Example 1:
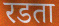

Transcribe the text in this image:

रडता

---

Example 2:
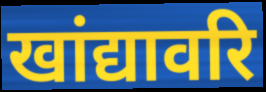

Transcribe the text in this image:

खांद्यावरि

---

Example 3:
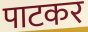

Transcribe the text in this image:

पाटकर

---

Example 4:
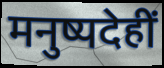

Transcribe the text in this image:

मनुष्यदेहीं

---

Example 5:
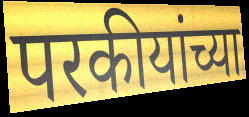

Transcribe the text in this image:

परकीयांच्या